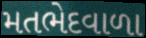
મતભેદવાળા